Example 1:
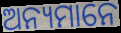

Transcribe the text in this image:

ଅନ୍ଯମାନେ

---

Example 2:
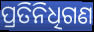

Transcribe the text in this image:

ପ୍ରତିନିଧିଗଣ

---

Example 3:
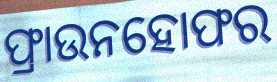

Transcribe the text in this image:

ଫ୍ରାଉନହୋଫର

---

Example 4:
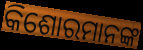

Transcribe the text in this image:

କିଶୋରମାନଙ୍କ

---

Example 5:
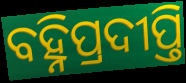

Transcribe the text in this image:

ବହ୍ନିପ୍ରଦୀପ୍ତି